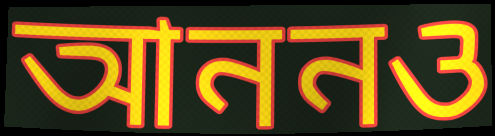
আননও